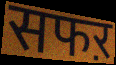
सफऱ